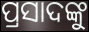
ପ୍ରସାଦଙ୍କୁ